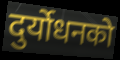
दुर्योधनको